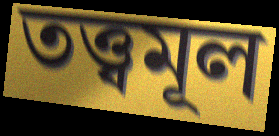
তত্ত্বমূল